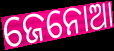
ଜେନୋଆ